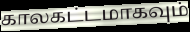
காலகட்டமாகவும்